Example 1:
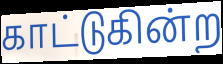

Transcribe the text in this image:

காட்டுகின்ற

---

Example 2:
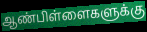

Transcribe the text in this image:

ஆண்பிள்ளைகளுக்கு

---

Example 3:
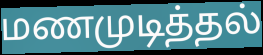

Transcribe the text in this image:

மணமுடித்தல்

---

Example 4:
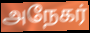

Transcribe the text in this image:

அநேகர்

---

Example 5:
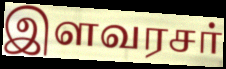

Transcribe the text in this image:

இளவரசர்